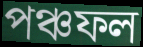
পঞ্চফল